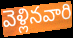
వెళ్లినవారి